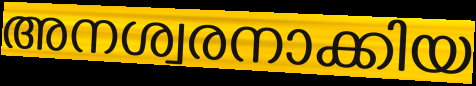
അനശ്വരനാക്കിയ